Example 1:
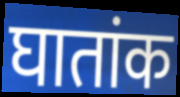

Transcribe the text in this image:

घातांक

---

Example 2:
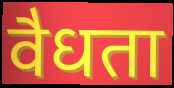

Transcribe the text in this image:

वैधता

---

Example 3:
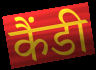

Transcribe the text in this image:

कैंडी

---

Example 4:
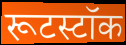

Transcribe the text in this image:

रूटस्टॉक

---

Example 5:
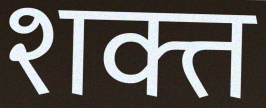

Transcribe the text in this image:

शक्त